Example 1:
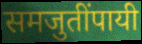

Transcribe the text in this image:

समजुतींपायी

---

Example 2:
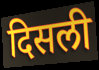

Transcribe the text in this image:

दिसली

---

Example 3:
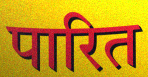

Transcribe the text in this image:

पारित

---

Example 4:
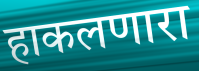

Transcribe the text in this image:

हाकलणारा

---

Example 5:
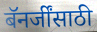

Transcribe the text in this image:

बॅनर्जींसाठी